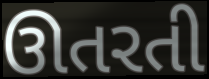
ઊતરતી